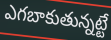
ఎగబాకుతున్నట్టే